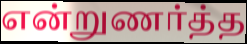
என்றுணர்த்த